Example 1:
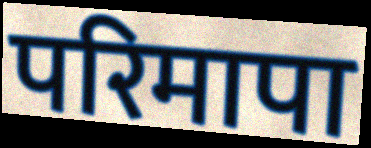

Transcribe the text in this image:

परिमापा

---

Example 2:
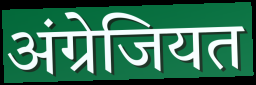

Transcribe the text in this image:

अंग्रेजियत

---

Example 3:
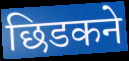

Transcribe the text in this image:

छिडकने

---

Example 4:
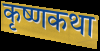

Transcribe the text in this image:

कृष्णकथा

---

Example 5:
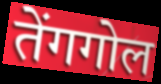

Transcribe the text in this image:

तेंगगोल